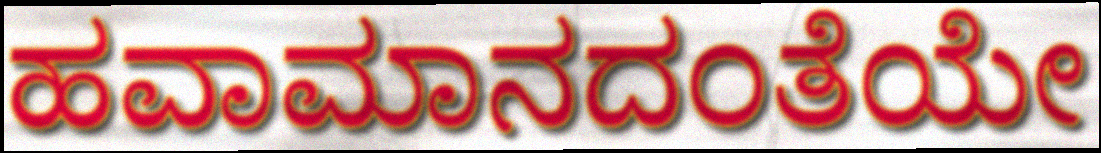
ಹವಾಮಾನದಂತೆಯೇ